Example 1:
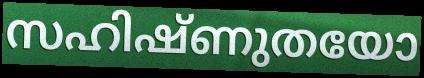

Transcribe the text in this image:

സഹിഷ്ണുതയോ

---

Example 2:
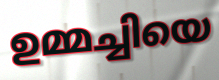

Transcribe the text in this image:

ഉമ്മച്ചിയെ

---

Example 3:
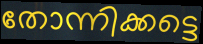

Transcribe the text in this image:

തോന്നിക്കട്ടെ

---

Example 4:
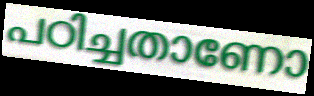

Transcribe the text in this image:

പഠിച്ചതാണോ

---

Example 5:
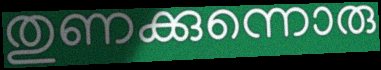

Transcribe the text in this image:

തുണക്കുന്നൊരു